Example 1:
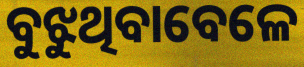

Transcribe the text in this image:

ବୁଝୁଥିବାବେଳେ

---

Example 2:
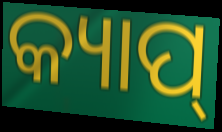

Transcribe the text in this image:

କ୍ୟାପ୍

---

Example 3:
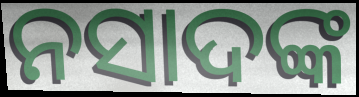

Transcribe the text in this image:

ନସାଦଙ୍କ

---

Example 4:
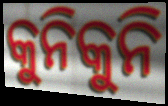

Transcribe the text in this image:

କୁନିକୁନି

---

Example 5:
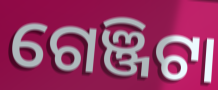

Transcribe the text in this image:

ଗେଞ୍ଜିଟା